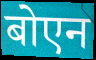
बोएन